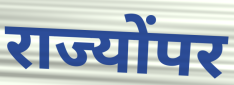
राज्योंपर